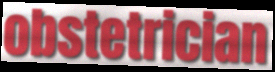
obstetrician